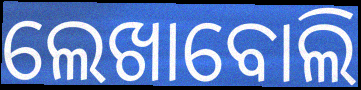
ଲେଖାବୋଲି